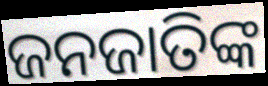
ଜନଜାତିଙ୍କ